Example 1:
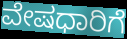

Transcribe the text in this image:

ವೇಷಧಾರಿಗೆ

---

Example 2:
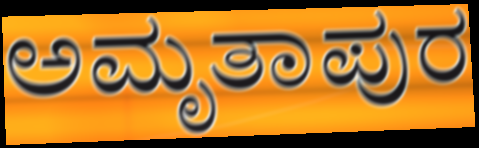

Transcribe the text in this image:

ಅಮೃತಾಪುರ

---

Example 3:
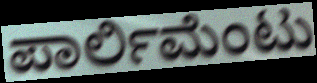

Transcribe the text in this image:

ಪಾರ್ಲಿಮೆಂಟು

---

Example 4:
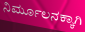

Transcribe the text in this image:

ನಿರ್ಮೂಲನಕ್ಕಾಗಿ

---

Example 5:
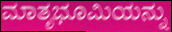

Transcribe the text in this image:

ಮಾತೃಭೂಮಿಯನ್ನು